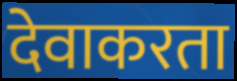
देवाकरता